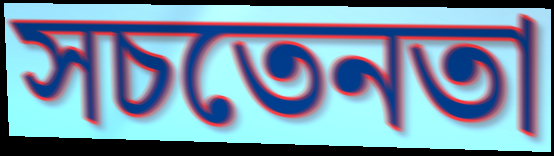
সচতেনতা